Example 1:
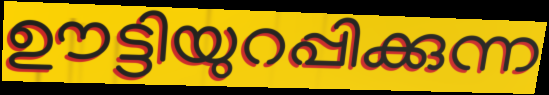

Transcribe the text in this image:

ഊട്ടിയുറപ്പിക്കുന്ന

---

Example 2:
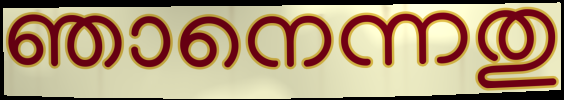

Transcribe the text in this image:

ഞാനെന്നതു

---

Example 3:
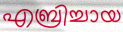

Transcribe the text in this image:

എബ്രിച്ചായ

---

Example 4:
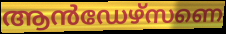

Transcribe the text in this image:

ആൻഡേഴ്സണെ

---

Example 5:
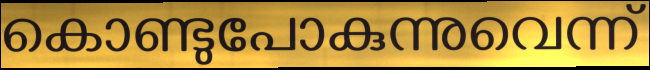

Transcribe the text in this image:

കൊണ്ടുപോകുന്നുവെന്ന്